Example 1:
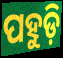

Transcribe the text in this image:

ପହୁଡ଼ି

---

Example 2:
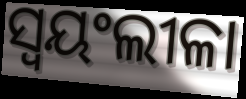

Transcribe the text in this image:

ସ୍ବୟଂଲୀଳା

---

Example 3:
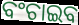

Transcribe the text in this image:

ବଂଚାଇବ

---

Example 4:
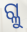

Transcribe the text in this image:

ଗ୍ଳୁ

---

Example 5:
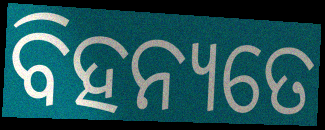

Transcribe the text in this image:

ବିହନ୍ୟତେ